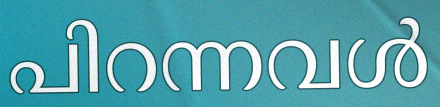
പിറന്നവൾ